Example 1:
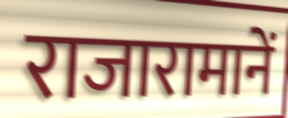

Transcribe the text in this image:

राजारामानें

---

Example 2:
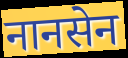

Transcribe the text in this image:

नानसेन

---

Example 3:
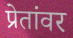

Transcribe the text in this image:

प्रेतांवर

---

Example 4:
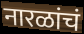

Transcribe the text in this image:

नारळांचं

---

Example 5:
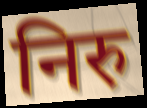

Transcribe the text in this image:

निरु